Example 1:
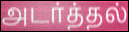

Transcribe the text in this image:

அடர்த்தல்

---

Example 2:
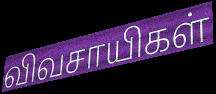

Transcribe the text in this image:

விவசாயிகள்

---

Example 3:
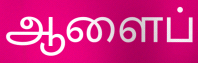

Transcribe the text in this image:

ஆளைப்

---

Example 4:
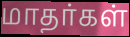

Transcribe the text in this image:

மாதர்கள்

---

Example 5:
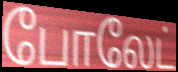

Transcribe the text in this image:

போலேட்